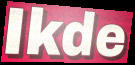
Ikde